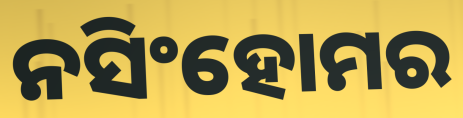
ନସିଂହୋମର